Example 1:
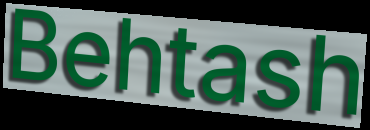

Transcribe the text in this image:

Behtash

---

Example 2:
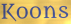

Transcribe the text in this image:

Koons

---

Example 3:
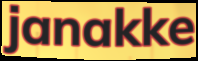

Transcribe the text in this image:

janakke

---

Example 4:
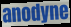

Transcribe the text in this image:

anodyne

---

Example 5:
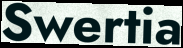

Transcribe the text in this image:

Swertia